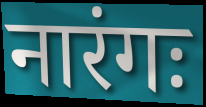
नारंगः